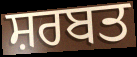
ਸ਼ਰਬਤ